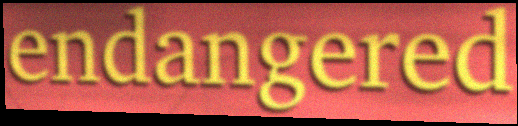
endangered